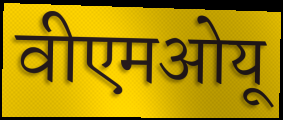
वीएमओयू